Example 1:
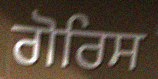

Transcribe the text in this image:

ਗੋਰਿਸ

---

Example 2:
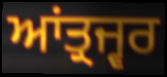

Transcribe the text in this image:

ਆਂਤ੍ਰਜ੍ਵਰ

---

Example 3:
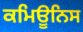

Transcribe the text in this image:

ਕਮਿਊਨਿਸ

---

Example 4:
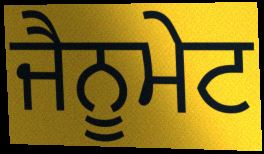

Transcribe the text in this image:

ਜੈਨੂਮੇਟ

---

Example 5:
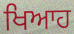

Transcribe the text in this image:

ਖਿਆਹ